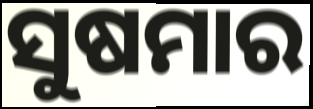
ସୁଷମାର